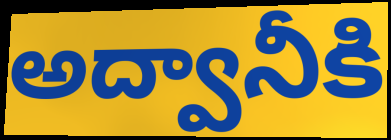
అద్వానీకి